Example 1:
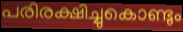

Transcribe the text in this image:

പരിരക്ഷിച്ചുകൊണ്ടും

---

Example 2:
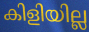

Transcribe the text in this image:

കിളിയില്ല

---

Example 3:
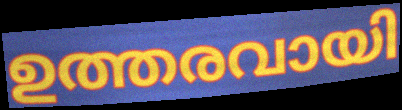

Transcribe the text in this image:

ഉത്തരവായി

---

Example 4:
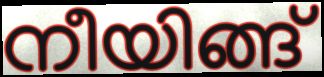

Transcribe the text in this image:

നീയിങ്ങ്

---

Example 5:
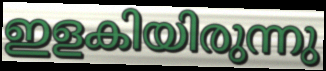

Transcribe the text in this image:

ഇളകിയിരുന്നു